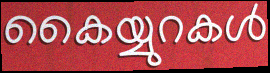
കൈയ്യുറകൾ